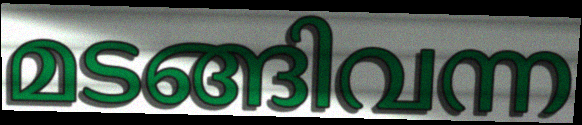
മടങ്ങിവന്ന